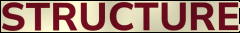
STRUCTURE